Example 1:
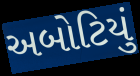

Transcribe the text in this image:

અબોટિયું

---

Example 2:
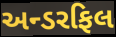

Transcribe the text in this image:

અન્ડરફિલ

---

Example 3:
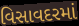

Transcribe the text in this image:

વિસાવદરમાં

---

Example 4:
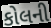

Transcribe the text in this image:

કોલની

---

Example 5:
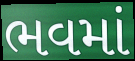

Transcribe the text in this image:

ભવમાં